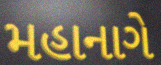
મહાનાગે